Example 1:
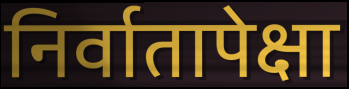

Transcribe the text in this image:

निर्वातापेक्षा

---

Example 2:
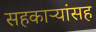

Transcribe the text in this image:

सहकाऱ्यांसह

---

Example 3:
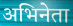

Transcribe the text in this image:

अभिनेता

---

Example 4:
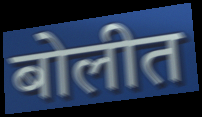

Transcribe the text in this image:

बोलीत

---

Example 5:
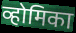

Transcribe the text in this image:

व्होमिका